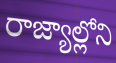
రాజ్యాల్లోని